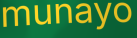
munayo